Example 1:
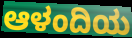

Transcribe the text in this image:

ಆಳಂದಿಯ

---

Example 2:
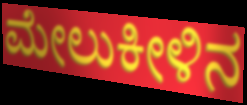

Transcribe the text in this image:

ಮೇಲುಕೀಳಿನ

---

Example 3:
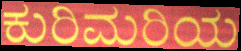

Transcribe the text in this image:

ಕುರಿಮರಿಯ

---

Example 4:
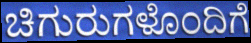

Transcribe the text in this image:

ಚಿಗುರುಗಳೊಂದಿಗೆ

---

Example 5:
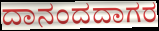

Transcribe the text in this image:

ದಾನಂದದಾಗರ